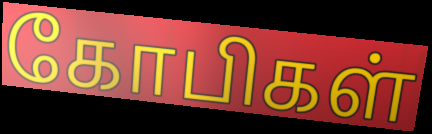
கோபிகள்